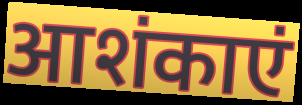
आशंकाएं